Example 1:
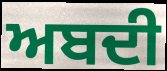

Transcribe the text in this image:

ਅਬਦੀ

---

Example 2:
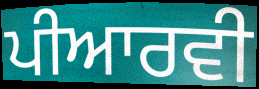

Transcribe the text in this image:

ਪੀਆਰਵੀ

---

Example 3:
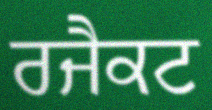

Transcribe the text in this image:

ਰਜੈਕਟ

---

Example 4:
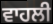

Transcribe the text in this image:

ਵਾਹਲੀ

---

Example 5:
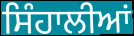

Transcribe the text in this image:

ਸਿੰਹਾਲੀਆਂ